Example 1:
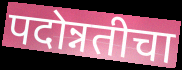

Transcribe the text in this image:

पदोन्नतीचा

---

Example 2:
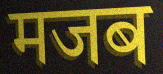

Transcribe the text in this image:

मजब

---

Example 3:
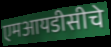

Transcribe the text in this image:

एमआयडीसीचे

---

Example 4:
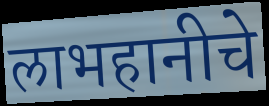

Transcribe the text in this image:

लाभहानीचे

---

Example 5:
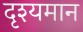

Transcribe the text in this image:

दृश्यमान